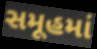
સમૂહમાં